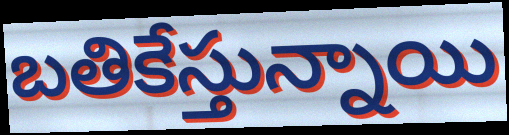
బతికేస్తున్నాయి